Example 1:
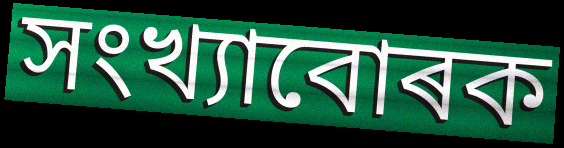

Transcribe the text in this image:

সংখ্যাবোৰক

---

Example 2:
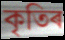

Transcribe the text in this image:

কৃতিৰ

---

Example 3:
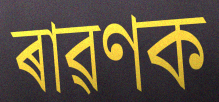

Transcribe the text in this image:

ৰাৱণক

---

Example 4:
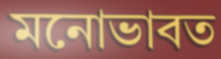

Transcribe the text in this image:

মনোভাবত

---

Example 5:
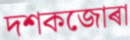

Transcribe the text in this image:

দশকজোৰা